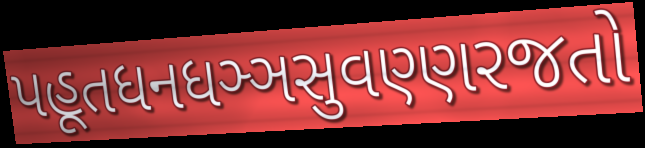
પહૂતધનધઞ્ઞસુવણ્ણરજતો